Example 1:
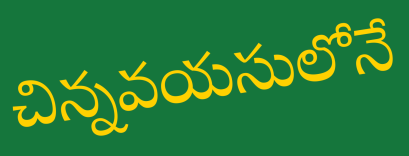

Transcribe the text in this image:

చిన్నవయసులోనే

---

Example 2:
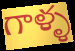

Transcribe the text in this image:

గాళ్ళ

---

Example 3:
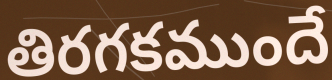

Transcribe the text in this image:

తిరగకముందే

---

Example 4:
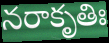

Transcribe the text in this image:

నరాకృతిః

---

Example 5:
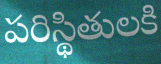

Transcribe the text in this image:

పరిస్థితులకి